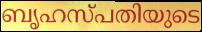
ബൃഹസ്പതിയുടെ